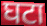
घटा